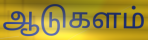
ஆடுகளம்